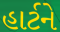
હાર્ટને